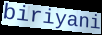
biriyani